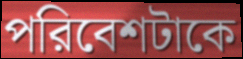
পরিবেশটাকে